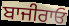
ਬਾਜੀਰਾਓ